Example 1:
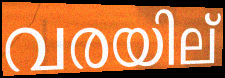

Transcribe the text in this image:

വരയില്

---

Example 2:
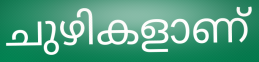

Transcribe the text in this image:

ചുഴികളാണ്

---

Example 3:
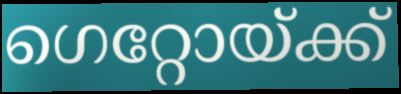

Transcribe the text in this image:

ഗെറ്റോയ്ക്ക്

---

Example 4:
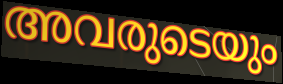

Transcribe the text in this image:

അവരുടെയും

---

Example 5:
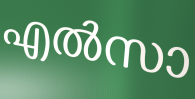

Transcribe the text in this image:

എൽസാ